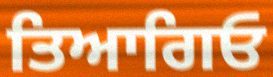
ਤਿਆਗਿਓ